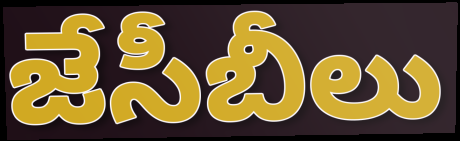
జేసీబీలు